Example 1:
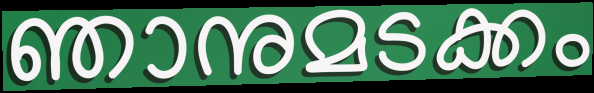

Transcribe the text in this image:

ഞാനുമടക്കം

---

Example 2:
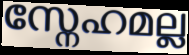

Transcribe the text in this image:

സ്നേഹമല്ല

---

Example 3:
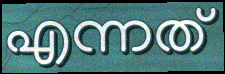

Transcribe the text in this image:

എന്നത്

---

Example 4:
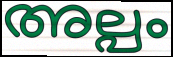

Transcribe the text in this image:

അല്പം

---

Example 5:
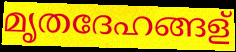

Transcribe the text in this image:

മൃതദേഹങ്ങള്